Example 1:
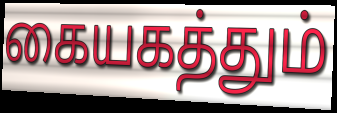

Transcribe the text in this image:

கையகத்தும்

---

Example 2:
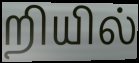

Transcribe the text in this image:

றியில்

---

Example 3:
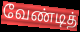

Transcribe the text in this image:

வேண்டித்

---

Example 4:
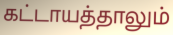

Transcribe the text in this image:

கட்டாயத்தாலும்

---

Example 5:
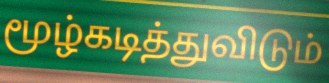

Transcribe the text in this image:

மூழ்கடித்துவிடும்